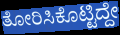
ತೋರಿಸಿಕೊಟ್ಟಿದ್ದೇ